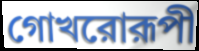
গোখরোরূপী